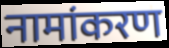
नामांकरण